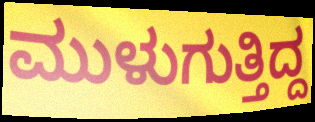
ಮುಳುಗುತ್ತಿದ್ದ